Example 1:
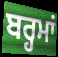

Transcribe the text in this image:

ਬਰ੍ਹਮਾਂ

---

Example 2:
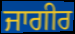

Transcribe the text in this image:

ਜਾਗੀਰ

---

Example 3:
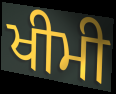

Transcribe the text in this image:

ਖੀਮੀ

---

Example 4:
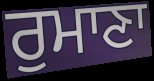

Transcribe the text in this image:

ਰੁਮਾਣਾ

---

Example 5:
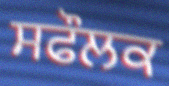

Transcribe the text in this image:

ਸਫੌਲਕ